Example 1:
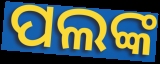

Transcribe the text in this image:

ପଲଙ୍କ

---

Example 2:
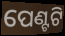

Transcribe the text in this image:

ପେଣ୍ଟଟି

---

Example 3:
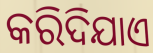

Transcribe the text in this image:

କରିଦିଯାଏ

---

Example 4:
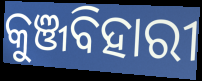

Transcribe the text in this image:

କୁଞ୍ଜବିହାରୀ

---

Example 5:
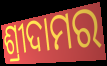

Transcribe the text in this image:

ଶ୍ରୀଦାମର